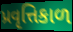
પ્રવૃત્તિકાળ